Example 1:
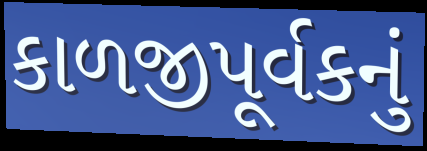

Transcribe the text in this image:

કાળજીપૂર્વકનું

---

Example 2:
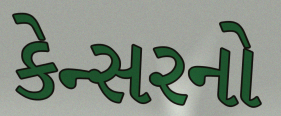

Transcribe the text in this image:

કેન્સરનો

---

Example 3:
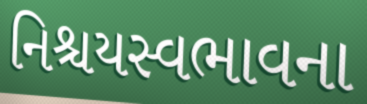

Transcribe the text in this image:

નિશ્ચયસ્વભાવના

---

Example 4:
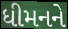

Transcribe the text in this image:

ધીમનને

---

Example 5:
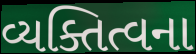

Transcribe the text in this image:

વ્યક્તિત્વના